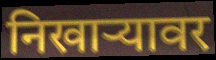
निखार्‍यावर